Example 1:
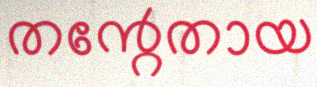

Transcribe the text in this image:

തന്റേതായ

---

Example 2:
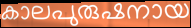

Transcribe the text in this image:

കാലപുരുഷനായ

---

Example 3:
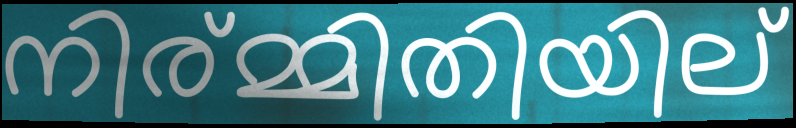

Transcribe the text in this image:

നിര്മ്മിതിയില്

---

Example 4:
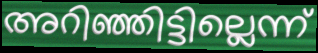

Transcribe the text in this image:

അറിഞ്ഞിട്ടില്ലെന്ന്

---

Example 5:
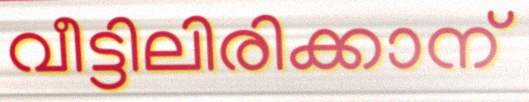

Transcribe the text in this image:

വീട്ടിലിരിക്കാന്